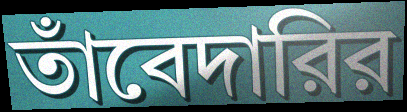
তাঁবেদারির